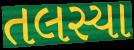
તલસ્યા